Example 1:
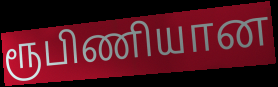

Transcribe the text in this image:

ரூபிணியான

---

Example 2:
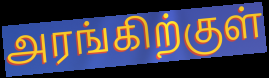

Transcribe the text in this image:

அரங்கிற்குள்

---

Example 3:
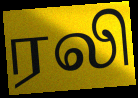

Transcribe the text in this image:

ரலி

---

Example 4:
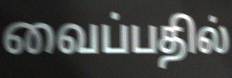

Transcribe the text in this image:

வைப்பதில்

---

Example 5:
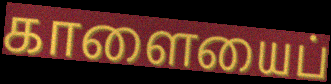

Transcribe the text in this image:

காளையைப்